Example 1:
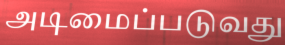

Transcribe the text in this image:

அடிமைப்படுவது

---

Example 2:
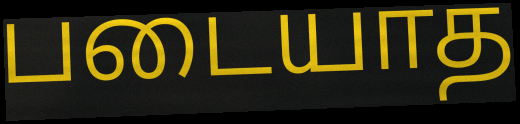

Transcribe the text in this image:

படையாத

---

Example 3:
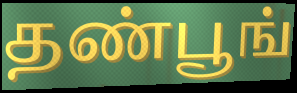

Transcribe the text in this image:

தண்பூங்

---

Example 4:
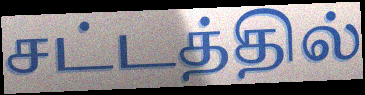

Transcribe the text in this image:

சட்டத்தில்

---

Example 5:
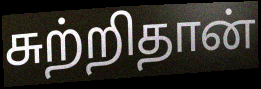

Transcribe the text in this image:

சுற்றிதான்